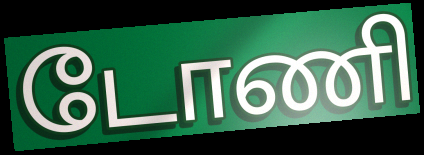
டோணி